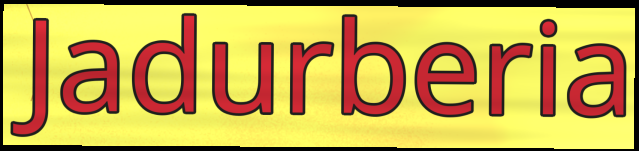
Jadurberia